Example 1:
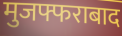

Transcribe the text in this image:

मुजफ्फराबाद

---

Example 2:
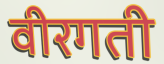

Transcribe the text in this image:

वीरगती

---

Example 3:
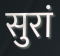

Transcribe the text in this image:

सुरां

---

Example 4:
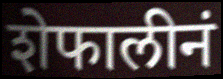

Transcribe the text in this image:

शेफालीनं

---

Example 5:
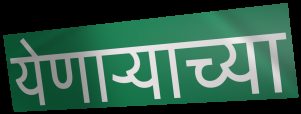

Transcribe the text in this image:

येणाऱ्याच्या